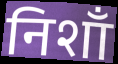
निशाँ